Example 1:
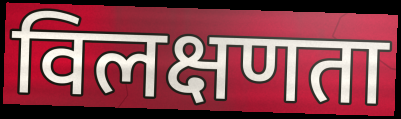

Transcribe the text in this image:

विलक्षणता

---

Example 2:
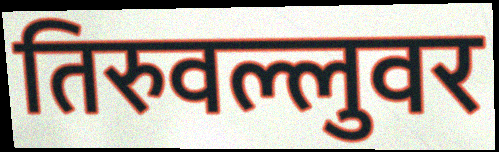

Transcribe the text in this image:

तिरुवल्लुवर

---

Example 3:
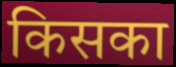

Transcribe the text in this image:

किसका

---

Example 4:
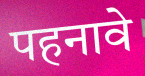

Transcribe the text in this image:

पहनावे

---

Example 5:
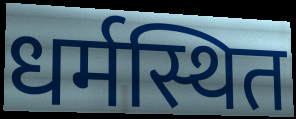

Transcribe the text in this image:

धर्मस्थित